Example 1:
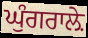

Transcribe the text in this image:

ਘੁੰਗਰਾਲ਼ੇ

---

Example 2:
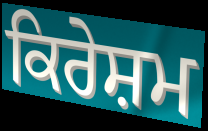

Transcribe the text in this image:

ਕਿਰੇਸ਼ਮ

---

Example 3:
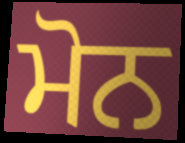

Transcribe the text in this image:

ਮੋਨ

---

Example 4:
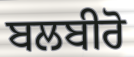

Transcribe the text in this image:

ਬਲਬੀਰੋ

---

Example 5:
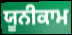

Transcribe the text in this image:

ਯੂਨੀਕਾਮ